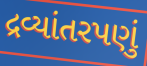
દ્રવ્યાંતરપણું